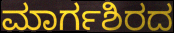
ಮಾರ್ಗಶಿರದ